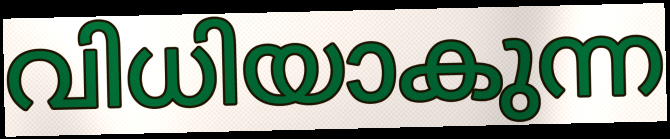
വിധിയാകുന്ന